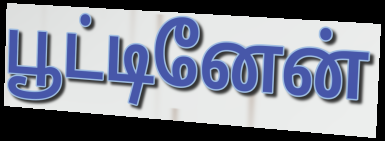
பூட்டினேன்